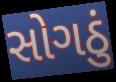
સોગઠું